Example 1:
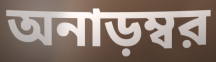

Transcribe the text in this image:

অনাড়ম্বর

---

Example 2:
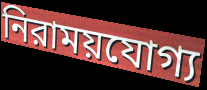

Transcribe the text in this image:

নিরাময়যোগ্য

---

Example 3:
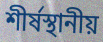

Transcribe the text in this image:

শীর্ষস্থানীয়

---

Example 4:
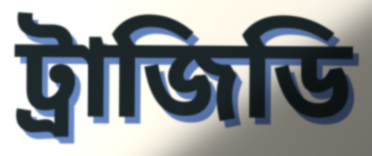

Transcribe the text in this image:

ট্রাজিডি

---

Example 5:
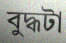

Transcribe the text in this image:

বুদ্ধটা